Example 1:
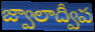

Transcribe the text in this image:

జ్వాలాద్వీప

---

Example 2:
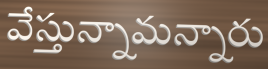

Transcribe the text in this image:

వేస్తున్నామన్నారు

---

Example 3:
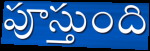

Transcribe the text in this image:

పూస్తుంది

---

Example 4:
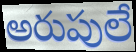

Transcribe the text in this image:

అరుపులే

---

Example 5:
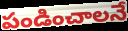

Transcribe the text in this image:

పండించాలనే